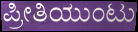
ಪ್ರೀತಿಯುಂಟು